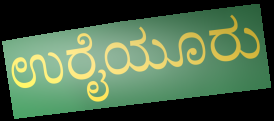
ಉರೈಯೂರು